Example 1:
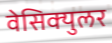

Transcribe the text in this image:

वेसिक्युलर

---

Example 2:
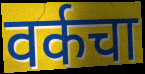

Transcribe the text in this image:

वर्कचा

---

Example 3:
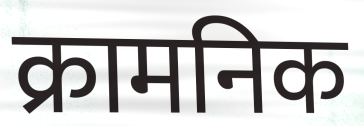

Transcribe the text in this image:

क्रामनिक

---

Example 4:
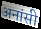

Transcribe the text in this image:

अनांसी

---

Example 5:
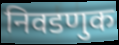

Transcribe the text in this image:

निवडणुक